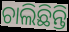
ଚାଲିଛିନ୍ତି